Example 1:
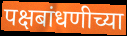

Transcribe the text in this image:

पक्षबांधणीच्या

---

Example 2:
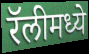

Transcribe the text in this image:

रॅलीमध्ये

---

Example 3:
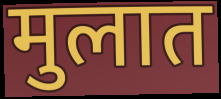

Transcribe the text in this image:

मुलात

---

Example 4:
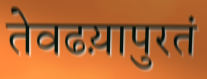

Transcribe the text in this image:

तेवढय़ापुरतं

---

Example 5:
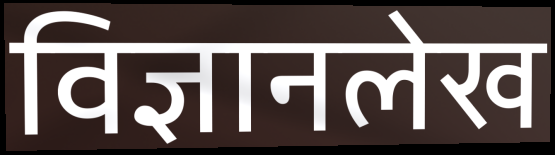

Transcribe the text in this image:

विज्ञानलेख